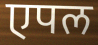
एपल